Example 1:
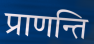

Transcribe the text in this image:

प्राणन्ति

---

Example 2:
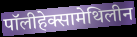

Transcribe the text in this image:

पॉलीहेक्सामेथिलीन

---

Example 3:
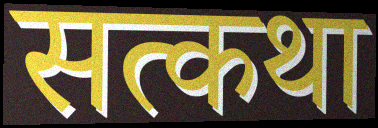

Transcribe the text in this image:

सत्कथा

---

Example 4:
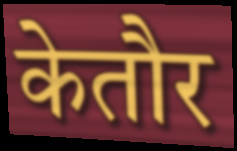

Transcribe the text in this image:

केतौर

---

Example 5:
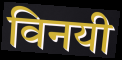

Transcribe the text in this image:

विनयी